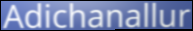
Adichanallur